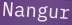
Nangur